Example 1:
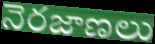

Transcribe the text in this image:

నెరజాణలు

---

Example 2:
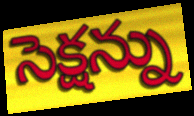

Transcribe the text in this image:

సెక్షన్ను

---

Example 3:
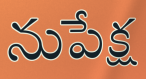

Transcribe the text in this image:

నుపేక్ష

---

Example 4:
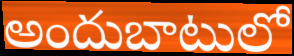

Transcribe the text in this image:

అందుబాటులో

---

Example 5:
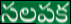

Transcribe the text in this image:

సలపక